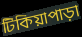
টিকিয়াপাড়া